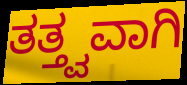
ತತ್ತ್ವವಾಗಿ